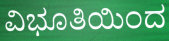
ವಿಭೂತಿಯಿಂದ